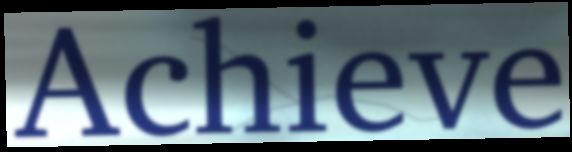
Achieve